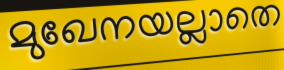
മുഖേനയല്ലാതെ